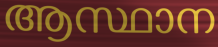
ആസ്ഥാന